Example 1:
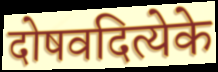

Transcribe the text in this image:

दोषवदित्येके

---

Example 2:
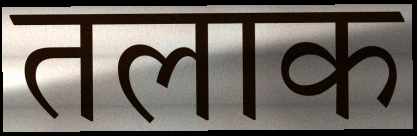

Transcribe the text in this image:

तलाक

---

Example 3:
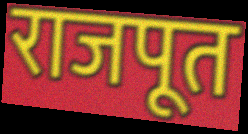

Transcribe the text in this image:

राजपूत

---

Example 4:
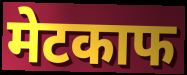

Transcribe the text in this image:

मेटकाफ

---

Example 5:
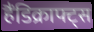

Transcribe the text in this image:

हैंडिक्राफ्ट्स